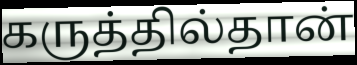
கருத்தில்தான்